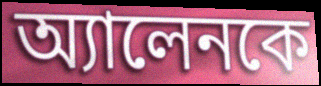
অ্যালেনকে